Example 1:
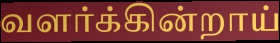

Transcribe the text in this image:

வளர்க்கின்றாய்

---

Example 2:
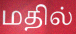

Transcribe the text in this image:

மதில்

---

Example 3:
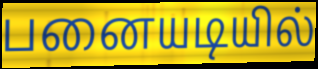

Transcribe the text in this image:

பனையடியில்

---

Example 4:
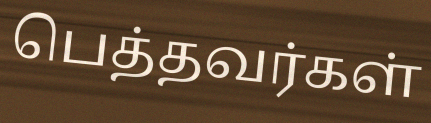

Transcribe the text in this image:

பெத்தவர்கள்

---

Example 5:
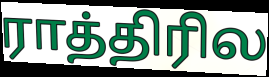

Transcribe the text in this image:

ராத்திரில